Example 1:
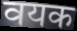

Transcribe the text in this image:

वयक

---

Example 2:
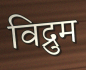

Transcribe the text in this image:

विद्रुम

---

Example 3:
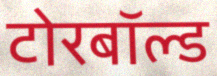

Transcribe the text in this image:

टोरबॉल्ड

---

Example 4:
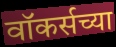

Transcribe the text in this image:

वॉकर्सच्या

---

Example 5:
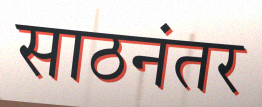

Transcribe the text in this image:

साठनंतर